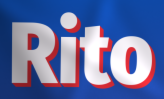
Rito